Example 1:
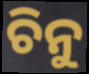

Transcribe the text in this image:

ଚିନୁ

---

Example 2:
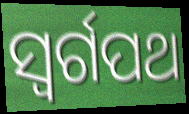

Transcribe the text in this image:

ସ୍ୱର୍ଗପଥ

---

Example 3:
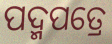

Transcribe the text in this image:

ପଦ୍ମପତ୍ରେ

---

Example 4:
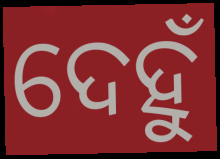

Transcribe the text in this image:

ଦେହୁଁ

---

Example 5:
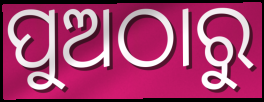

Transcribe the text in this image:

ପୁଅଠାରୁ